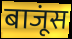
बाजूंस